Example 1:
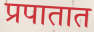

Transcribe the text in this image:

प्रपातात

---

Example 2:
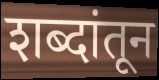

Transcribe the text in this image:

शब्दांतून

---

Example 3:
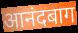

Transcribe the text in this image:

आनंदबाग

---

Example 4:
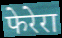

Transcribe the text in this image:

फेरेरा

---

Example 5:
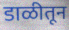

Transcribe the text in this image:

डाळीतून